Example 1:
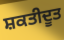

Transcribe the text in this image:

ਸ਼ਕਤੀਦੂਤ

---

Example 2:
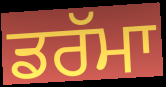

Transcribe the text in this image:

ਡਰੱਮਾ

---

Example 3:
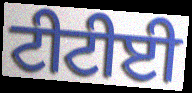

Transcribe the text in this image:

ਟੀਟੀਈ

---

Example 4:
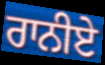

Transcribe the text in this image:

ਰਾਨੀਏ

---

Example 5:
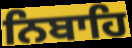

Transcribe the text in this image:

ਨਿਬਾਹਿ